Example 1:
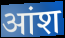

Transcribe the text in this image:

आंश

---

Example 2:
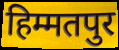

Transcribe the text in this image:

हिम्मतपुर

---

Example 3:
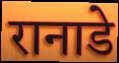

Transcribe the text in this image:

रानाडे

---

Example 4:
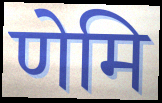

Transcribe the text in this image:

णेमि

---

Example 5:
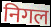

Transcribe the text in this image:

निगल